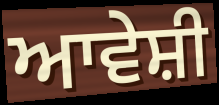
ਆਵੇਸ਼ੀ